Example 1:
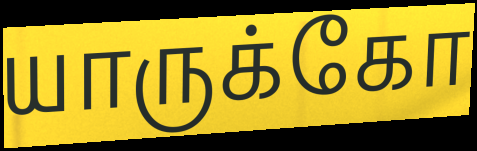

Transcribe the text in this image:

யாருக்கோ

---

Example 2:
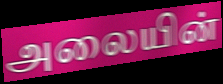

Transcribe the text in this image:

அலையின்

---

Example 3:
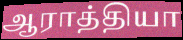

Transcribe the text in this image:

ஆராத்தியா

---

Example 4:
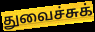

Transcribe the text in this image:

துவைச்சுக்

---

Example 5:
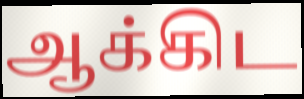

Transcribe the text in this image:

ஆக்கிட